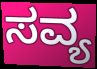
ಸವ್ಯ